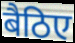
बैठिए